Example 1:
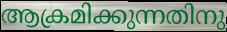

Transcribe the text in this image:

ആക്രമിക്കുന്നതിനു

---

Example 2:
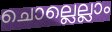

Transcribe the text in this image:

ചൊല്ലെല്ലാം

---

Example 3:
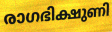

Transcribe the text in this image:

രാഗഭിക്ഷുണി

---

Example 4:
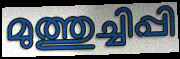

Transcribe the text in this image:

മുത്തുച്ചിപ്പി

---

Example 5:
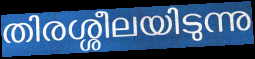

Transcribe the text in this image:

തിരശ്ശീലയിടുന്നു